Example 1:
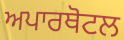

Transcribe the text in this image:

ਅਪਾਰਥੋਟਲ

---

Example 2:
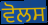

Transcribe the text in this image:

ਵੋਲਸ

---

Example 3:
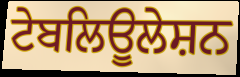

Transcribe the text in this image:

ਟੇਬਲਿਊਲੇਸ਼ਨ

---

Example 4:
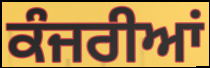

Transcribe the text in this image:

ਕੰਜਰੀਆਂ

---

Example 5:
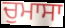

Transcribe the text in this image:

ਚੁਮਾਸਾ